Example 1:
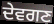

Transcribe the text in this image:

ਦੇਵਗਣ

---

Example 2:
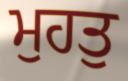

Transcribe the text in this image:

ਮੁਹਤੁ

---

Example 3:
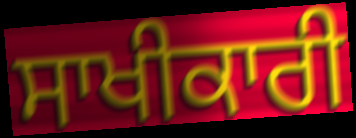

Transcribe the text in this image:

ਸਾਖੀਕਾਰੀ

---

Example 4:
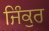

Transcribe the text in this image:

ਜਿੰਕੁਰ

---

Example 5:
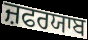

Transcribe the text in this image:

ਜ਼ਫਰਯਾਬ